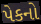
પેકનો